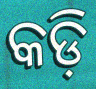
କଡ଼ି